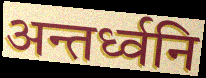
अन्तर्ध्वनि